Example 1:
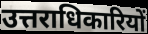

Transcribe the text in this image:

उत्तराधिकारियों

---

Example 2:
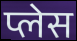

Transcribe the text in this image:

प्लेस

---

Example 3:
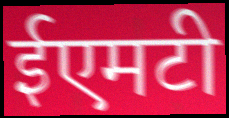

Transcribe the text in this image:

ईएमटी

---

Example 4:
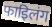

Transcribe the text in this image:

फाइिलंग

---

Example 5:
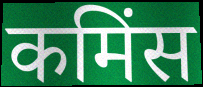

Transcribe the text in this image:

कमिंस